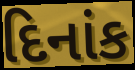
દિનાંક